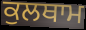
ਕੁਲਥਾਮ